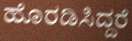
ಹೊರಡಿಸಿದ್ದರೆ